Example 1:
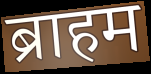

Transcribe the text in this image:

ब्राहम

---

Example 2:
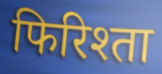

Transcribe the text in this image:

फिरिश्ता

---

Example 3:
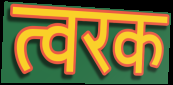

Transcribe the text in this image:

त्वरक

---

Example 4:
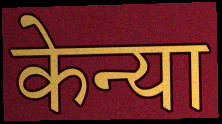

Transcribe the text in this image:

केन्या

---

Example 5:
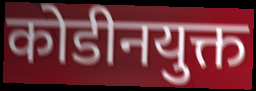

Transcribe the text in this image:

कोडीनयुक्त